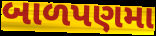
બાળપણમા